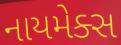
નાયમેક્સ